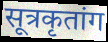
सूत्रकृतांग